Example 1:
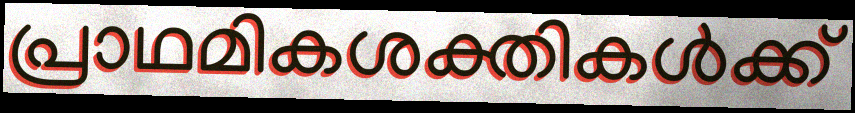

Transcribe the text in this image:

പ്രാഥമികശക്തികൾക്ക്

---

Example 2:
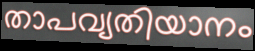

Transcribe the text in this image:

താപവ്യതിയാനം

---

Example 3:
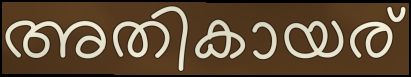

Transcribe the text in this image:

അതികായര്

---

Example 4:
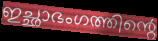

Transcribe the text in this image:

ഇച്ഛാഭംഗത്തിന്റെ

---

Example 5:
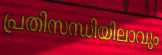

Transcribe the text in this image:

പ്രതിസന്ധിയിലാവും